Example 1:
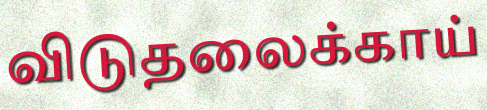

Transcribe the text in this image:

விடுதலைக்காய்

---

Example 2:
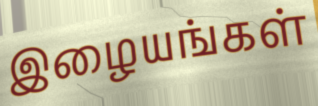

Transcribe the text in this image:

இழையங்கள்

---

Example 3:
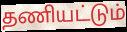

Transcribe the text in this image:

தணியட்டும்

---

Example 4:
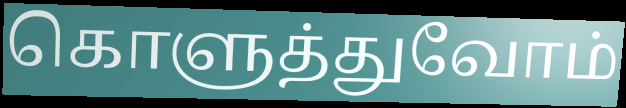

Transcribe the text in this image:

கொளுத்துவோம்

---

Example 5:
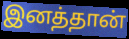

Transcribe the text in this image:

இனத்தான்